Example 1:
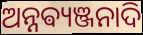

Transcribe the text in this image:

ଅନ୍ନଵ୍ୟଞ୍ଜନାଦି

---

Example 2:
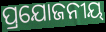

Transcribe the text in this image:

ପ୍ରଯୋଜନୀୟ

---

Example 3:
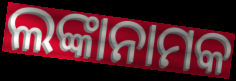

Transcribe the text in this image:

ଲଙ୍କାନାମକ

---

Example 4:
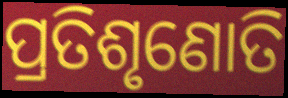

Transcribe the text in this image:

ପ୍ରତିଶୃଣୋତି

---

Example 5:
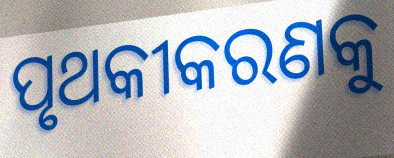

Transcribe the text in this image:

ପୃଥକୀକରଣକୁ